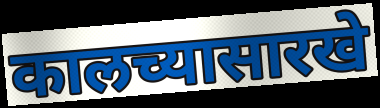
कालच्यासारखे